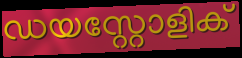
ഡയസ്റ്റോളിക്